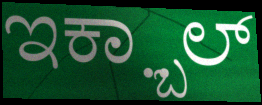
ಇಕ಼್ಬಾಲ್